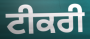
ਟੀਕਰੀ